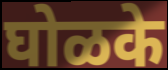
घोळके